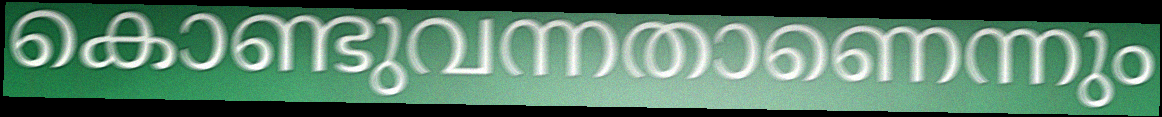
കൊണ്ടുവന്നതാണെന്നും